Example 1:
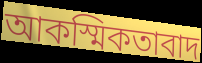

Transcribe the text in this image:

আকস্মিকতাবাদ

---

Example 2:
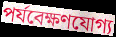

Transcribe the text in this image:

পর্যবেক্ষণযোগ্য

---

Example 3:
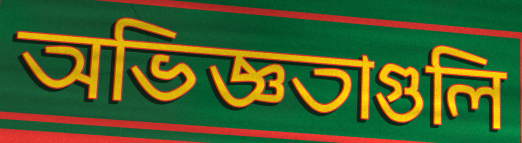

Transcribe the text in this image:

অভিজ্ঞতাগুলি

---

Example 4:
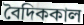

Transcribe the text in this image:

বৈদিককাল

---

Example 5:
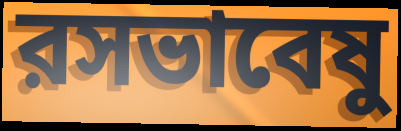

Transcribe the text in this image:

রসভাবেষু